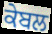
ਕੇਬਲ